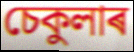
চেকুলাৰ